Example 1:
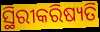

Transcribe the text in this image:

ସ୍ଥିରୀକରିଷ୍ଯତି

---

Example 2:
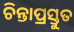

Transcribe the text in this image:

ଚିନ୍ତାପ୍ରସ୍ତୁତ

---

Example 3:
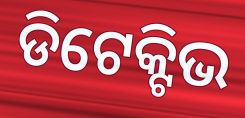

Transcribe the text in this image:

ଡିଟେକ୍ଟିଭ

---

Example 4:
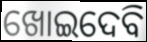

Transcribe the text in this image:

ଖୋଇଦେବି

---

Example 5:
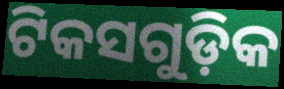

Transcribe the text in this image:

ଟିକସଗୁଡ଼ିକ